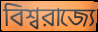
বিশ্বরাজ্যে